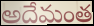
అదేమంత